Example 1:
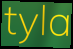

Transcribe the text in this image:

tyla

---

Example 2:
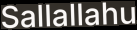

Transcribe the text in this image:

Sallallahu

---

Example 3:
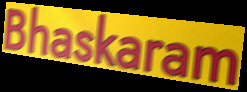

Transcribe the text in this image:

Bhaskaram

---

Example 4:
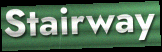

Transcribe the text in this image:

Stairway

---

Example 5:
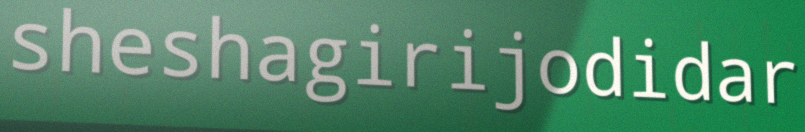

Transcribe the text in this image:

sheshagirijodidar